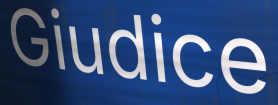
Giudice